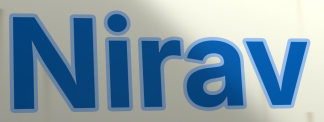
Nirav